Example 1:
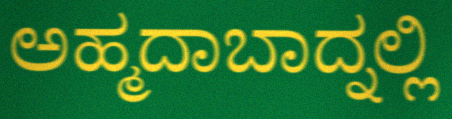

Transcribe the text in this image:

ಅಹ್ಮದಾಬಾದ್ನಲ್ಲಿ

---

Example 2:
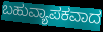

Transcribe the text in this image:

ಬಹುವ್ಯಾಪಕವಾದ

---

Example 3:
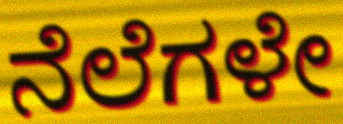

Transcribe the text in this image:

ನೆಲೆಗಳೇ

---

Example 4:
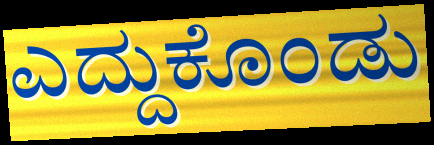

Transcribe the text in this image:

ಎದ್ದುಕೊಂಡು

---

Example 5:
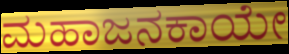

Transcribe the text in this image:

ಮಹಾಜನಕಾಯೇ